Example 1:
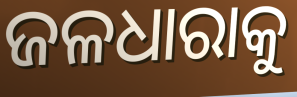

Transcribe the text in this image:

ଜଳଧାରାକୁ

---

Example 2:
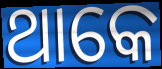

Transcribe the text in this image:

ଥାକେ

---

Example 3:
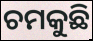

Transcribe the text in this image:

ଚମକୁଛି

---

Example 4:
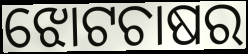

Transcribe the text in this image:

ଝୋଟଚାଷର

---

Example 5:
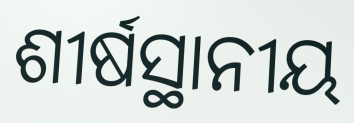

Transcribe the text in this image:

ଶୀର୍ଷସ୍ଥାନୀୟ